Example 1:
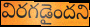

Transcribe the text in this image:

విరగడైందని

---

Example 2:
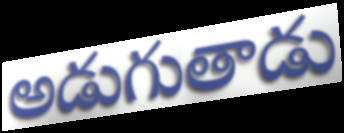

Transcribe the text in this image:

అడుగుతాడు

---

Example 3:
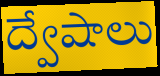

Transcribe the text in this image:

ద్వేషాలు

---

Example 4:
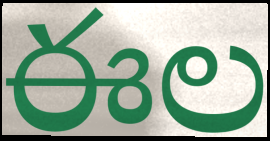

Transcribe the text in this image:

ఈల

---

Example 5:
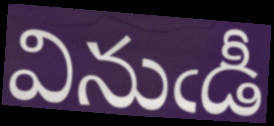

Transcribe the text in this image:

వినుఁడీ